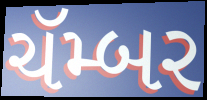
ચૅમ્બર